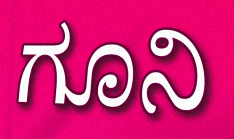
ಗೂನಿ